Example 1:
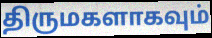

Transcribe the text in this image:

திருமகளாகவும்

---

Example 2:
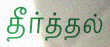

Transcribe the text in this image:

தீர்த்தல்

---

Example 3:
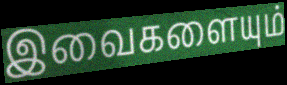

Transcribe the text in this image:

இவைகளையும்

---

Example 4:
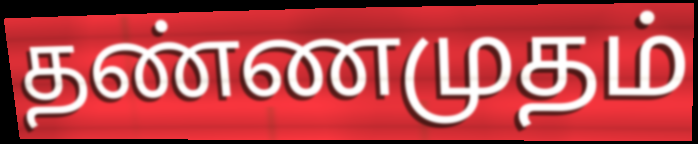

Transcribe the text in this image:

தண்ணமுதம்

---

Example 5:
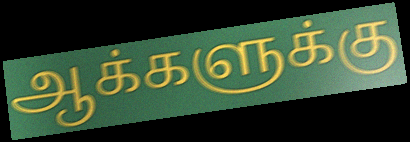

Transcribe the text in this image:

ஆக்களுக்கு